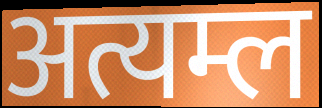
अत्यम्ल